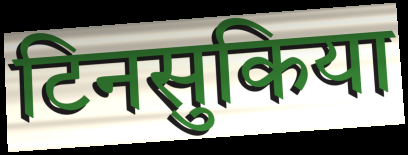
टिनसुकिया